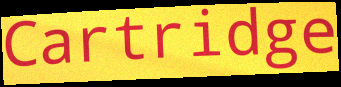
Cartridge